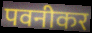
पवनीकर